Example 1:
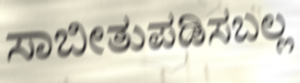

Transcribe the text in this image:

ಸಾಬೀತುಪಡಿಸಬಲ್ಲ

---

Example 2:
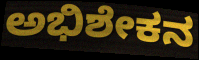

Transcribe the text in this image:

ಅಭಿಶೇಕನ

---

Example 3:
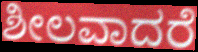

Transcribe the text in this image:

ಶೀಲವಾದರೆ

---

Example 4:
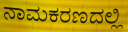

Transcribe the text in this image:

ನಾಮಕರಣದಲ್ಲಿ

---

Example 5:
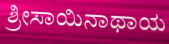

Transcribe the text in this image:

ಶ್ರೀಸಾಯಿನಾಥಾಯ